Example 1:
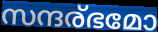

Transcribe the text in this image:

സന്ദര്ഭമോ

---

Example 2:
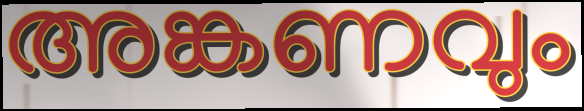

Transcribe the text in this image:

അങ്കണവും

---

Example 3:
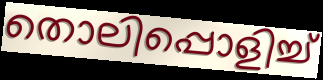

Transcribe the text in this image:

തൊലിപ്പൊളിച്ച്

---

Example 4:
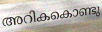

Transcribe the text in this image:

അറികകൊണ്ടു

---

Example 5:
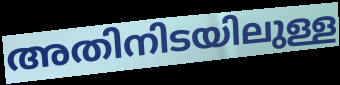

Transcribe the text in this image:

അതിനിടയിലുള്ള